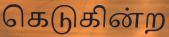
கெடுகின்ற